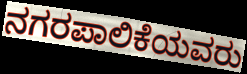
ನಗರಪಾಲಿಕೆಯವರು